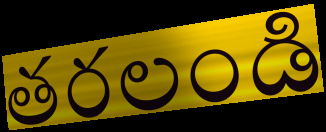
తరలండి